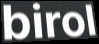
birol